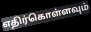
எதிர்கொள்ளவும்